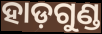
ହାଡ଼ଗୁଣ୍ଡ